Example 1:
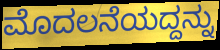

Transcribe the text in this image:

ಮೊದಲನೆಯದ್ದನ್ನು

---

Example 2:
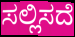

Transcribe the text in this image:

ಸಲ್ಲಿಸದೆ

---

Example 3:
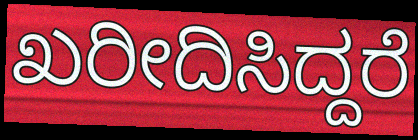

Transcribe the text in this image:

ಖರೀದಿಸಿದ್ದರೆ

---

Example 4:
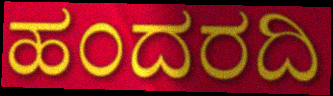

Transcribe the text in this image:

ಹಂದರದಿ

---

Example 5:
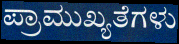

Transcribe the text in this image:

ಪ್ರಾಮುಖ್ಯತೆಗಳು